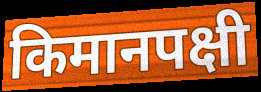
किमानपक्षी